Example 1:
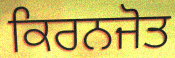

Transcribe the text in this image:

ਕਿਰਨਜੋਤ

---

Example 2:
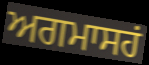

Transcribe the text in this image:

ਅਗਮਾਸਹਂ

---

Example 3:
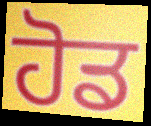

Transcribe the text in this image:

ਹੋਡ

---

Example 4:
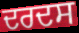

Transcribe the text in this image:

ਦਰਦਸ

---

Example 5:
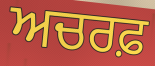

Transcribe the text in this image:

ਅਚਰਫ਼